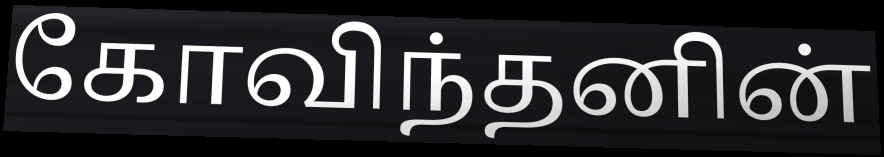
கோவிந்தனின்